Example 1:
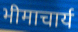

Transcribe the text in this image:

भीमाचार्य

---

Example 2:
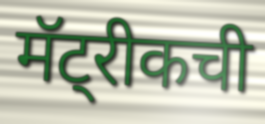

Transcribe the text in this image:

मॅट्रीकची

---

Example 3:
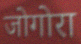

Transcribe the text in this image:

जोगोरा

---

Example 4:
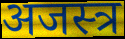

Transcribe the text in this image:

अजस्त्र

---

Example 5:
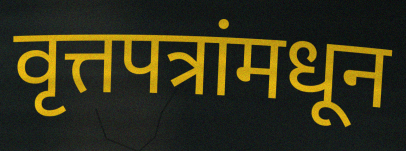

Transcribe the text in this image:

वृत्तपत्रांमधून